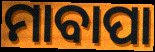
ମାବାପା